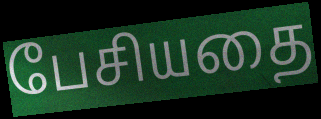
பேசியதை